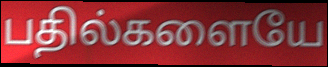
பதில்களையே